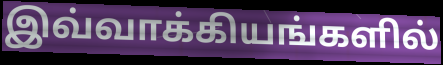
இவ்வாக்கியங்களில்